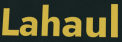
Lahaul